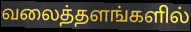
வலைத்தளங்களில்